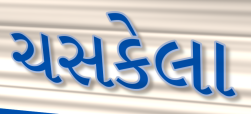
ચસકેલા